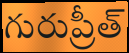
గురుప్రీత్